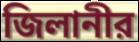
জিলানীর